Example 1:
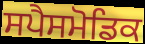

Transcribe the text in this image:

ਸਪੈਸਮੋਡਿਕ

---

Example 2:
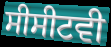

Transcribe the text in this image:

ਸੀਸੀਟਵੀ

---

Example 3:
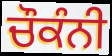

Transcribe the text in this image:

ਚੌਕੰਨੀ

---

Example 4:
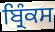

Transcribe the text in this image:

ਬ੍ਰਿੰਕਸ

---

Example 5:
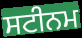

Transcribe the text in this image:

ਸਟੀਨਮ